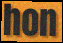
hon